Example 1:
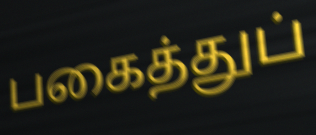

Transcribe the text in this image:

பகைத்துப்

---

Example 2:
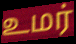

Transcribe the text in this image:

உமர்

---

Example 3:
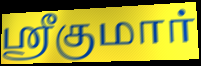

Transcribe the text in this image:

ஸ்ரீகுமார்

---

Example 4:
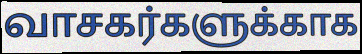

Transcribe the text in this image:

வாசகர்களுக்காக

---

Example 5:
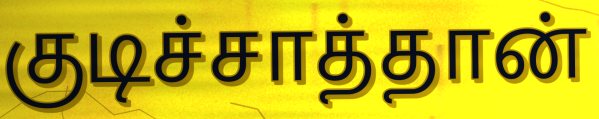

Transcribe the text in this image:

குடிச்சாத்தான்